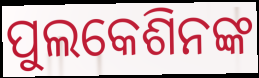
ପୁଲକେଶିନଙ୍କ